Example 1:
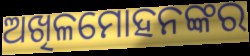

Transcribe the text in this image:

ଅଖିଳମୋହନଙ୍କର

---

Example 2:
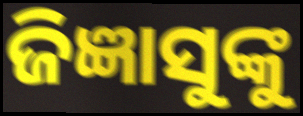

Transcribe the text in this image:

ଜିଜ୍ଞାସୁଙ୍କୁ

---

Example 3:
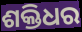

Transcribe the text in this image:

ଶକ୍ତିଧର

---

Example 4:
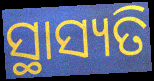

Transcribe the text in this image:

ସ୍ଥାସ୍ୟତି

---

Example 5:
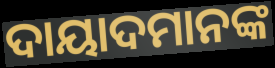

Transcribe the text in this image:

ଦାୟାଦମାନଙ୍କ